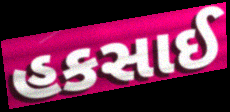
હકસાઈ